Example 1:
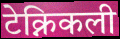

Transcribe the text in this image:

टेक्निकली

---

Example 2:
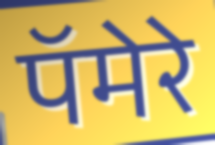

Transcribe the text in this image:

पॅमेरे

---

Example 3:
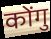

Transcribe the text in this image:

कोंगु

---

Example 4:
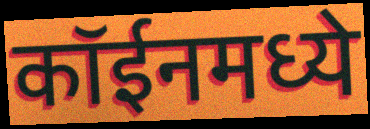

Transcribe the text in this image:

कॉईनमध्ये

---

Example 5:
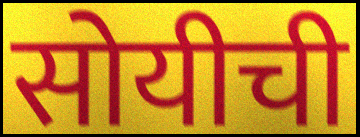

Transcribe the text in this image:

सोयीची